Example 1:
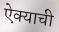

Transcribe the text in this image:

ऐक्याची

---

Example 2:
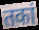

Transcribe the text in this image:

तकां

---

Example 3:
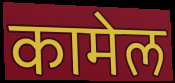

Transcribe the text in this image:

कामेल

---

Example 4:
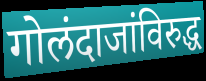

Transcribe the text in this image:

गोलंदाजांविरुद्ध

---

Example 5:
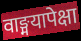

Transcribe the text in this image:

वाङ्मयापेक्षा